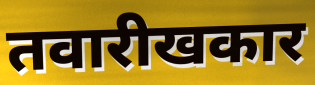
तवारीखकार